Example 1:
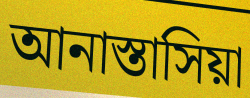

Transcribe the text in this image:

আনাস্তাসিয়া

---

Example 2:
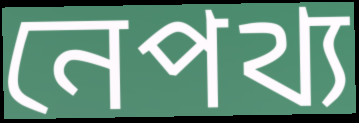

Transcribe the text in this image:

নেপথ্য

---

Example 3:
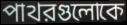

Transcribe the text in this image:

পাথরগুলোকে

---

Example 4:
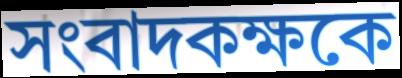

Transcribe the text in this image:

সংবাদকক্ষকে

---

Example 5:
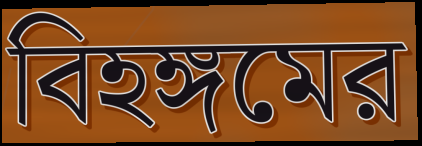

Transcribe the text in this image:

বিহঙ্গমের